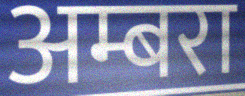
अम्बरा